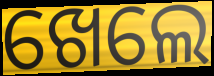
ଖେଲେ